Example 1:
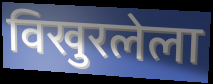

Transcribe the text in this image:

विखुरलेला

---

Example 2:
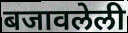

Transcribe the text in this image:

बजावलेली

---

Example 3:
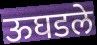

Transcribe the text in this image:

ऊघडले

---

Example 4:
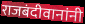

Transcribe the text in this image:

राजबंदीवानांनी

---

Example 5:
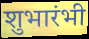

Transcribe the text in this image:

शुभारंभी